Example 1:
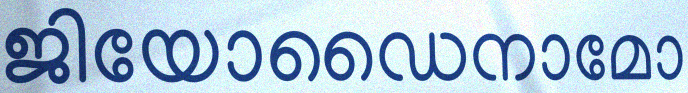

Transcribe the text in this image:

ജിയോഡൈനാമോ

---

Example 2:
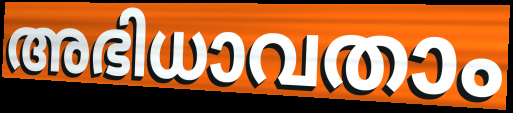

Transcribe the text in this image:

അഭിധാവതാം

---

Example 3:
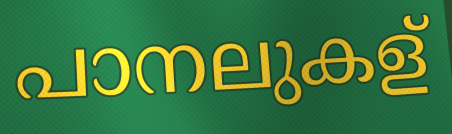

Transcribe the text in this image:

പാനലുകള്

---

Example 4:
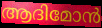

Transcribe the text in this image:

ആദിമോൻ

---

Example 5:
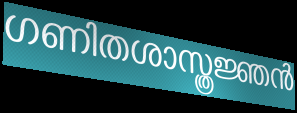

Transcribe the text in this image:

ഗണിതശാസ്ത്രജ്ഞൻ